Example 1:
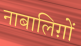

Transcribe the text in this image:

नाबालिग़ों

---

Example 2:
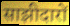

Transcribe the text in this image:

साझीदारों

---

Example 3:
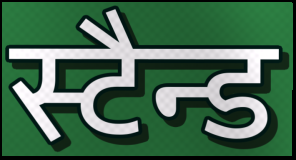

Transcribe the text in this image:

स्टैन्ड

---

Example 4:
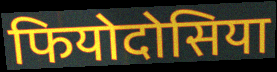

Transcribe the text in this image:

फियोदोसिया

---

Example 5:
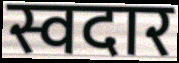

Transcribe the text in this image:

स्वदार